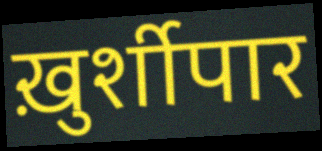
ख़ुर्शीपार